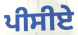
ਪੀਸੀਏ